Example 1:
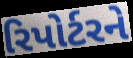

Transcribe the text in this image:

રિપોર્ટરને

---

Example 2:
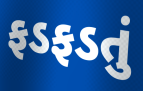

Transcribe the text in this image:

ફડફડતું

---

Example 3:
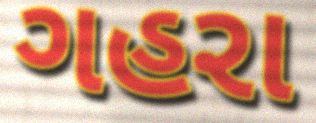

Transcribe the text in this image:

ગહરા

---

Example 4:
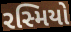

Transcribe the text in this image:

રસ્મિયો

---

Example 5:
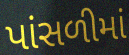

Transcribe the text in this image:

પાંસળીમાં